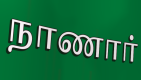
நாணார்